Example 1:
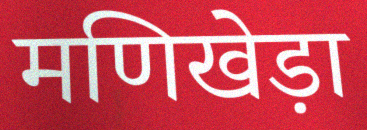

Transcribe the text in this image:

मणिखेड़ा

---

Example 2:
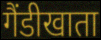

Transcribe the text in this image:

गैंडीखाता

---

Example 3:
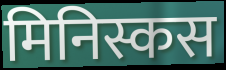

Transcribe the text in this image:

मिनिस्कस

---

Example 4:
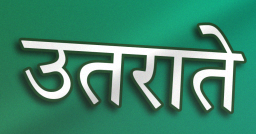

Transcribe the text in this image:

उतराते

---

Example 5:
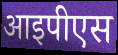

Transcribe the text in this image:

आइपीएस